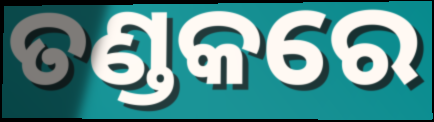
ତଣ୍ଡକରେ